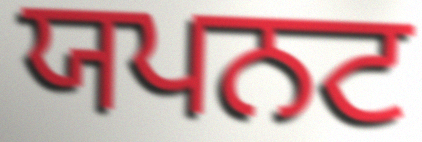
ਯਪਨਟ